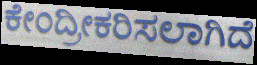
ಕೇಂದ್ರೀಕರಿಸಲಾಗಿದೆ